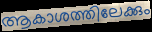
ആകാശത്തിലേക്കും